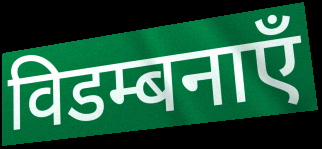
विडम्बनाएँ